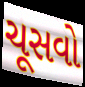
ચૂસવો